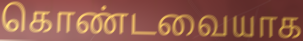
கொண்டவையாக